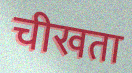
चीखता